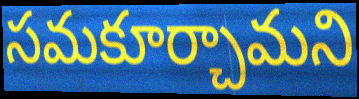
సమకూర్చామని